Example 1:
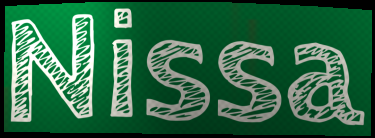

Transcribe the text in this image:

Nissa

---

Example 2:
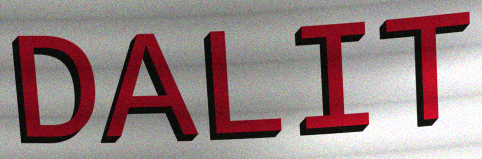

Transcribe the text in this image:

DALIT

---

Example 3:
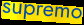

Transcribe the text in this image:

supremo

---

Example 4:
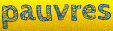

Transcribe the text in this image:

pauvres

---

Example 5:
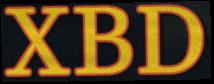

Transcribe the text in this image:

XBD